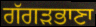
ਗੱਗੜਭਾਣਾ